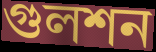
গুলশন